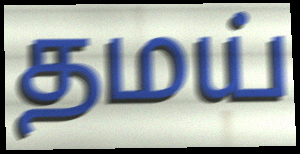
தமய்